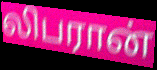
லிபரான்